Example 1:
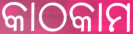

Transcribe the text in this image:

କାଠକାମ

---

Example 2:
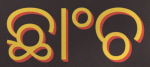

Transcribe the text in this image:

ଛାଂଚ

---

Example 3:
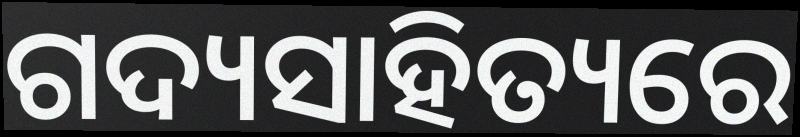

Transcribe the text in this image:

ଗଦ୍ୟସାହିତ୍ୟରେ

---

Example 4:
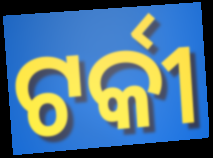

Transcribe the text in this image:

ଟର୍କୀ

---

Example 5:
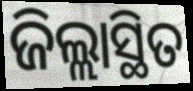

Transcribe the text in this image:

ଜିଲ୍ଲାସ୍ଥିତ